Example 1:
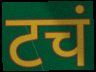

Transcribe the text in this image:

टचं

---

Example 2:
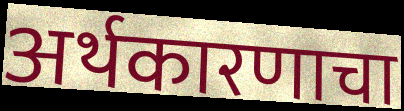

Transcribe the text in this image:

अर्थकारणाचा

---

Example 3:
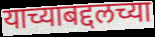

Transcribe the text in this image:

याच्याबद्दलच्या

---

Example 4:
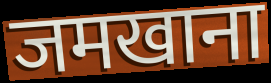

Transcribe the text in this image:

जमखाना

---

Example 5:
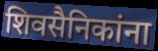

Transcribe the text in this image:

शिवसैनिकांना